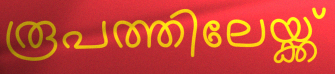
രൂപത്തിലേയ്ക്ക്